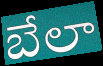
బేలా